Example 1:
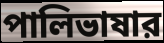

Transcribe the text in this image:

পালিভাষার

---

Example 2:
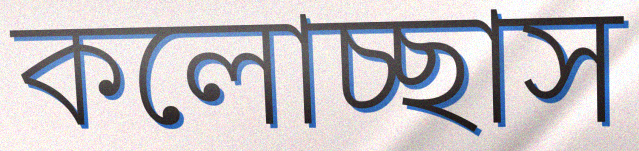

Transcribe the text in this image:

কলোচ্ছাস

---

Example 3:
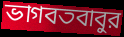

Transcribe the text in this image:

ভাগবতবাবুর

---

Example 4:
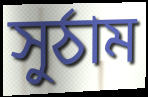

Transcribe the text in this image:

সুঠাম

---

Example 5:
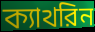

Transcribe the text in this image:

ক্যাথরিন